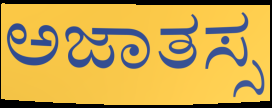
ಅಜಾತಸ್ಸ